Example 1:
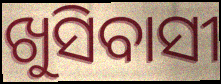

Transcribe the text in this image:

ଖୁସିବାସୀ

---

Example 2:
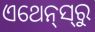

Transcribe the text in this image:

ଏଥେନ୍‌ସ୍‌ରୁ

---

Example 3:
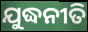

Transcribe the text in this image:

ଯୁଦ୍ଧନୀତି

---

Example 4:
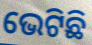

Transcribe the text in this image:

ଭେଟିଛି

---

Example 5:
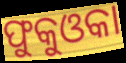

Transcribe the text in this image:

ଫୁକୁଓକା